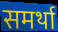
समर्था